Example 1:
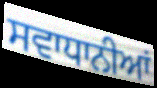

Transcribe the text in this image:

ਸਵਾਧਾਨੀਆਂ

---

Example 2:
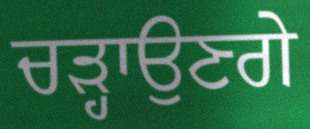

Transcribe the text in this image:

ਚੜ੍ਹਾਉਣਗੇ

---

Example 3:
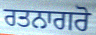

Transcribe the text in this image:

ਰਤਨਾਗਰੋ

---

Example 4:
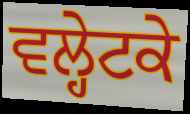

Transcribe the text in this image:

ਵਲ੍ਹੇਟਕੇ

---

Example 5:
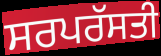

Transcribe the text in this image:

ਸਰਪਰੱਸਤੀ